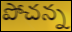
పోచన్న